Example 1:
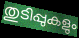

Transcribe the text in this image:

തുടിപ്പുകളും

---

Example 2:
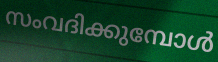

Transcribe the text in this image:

സംവദിക്കുമ്പോൾ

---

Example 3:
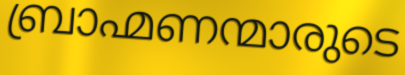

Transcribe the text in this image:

ബ്രാഹ്മണന്മാരുടെ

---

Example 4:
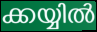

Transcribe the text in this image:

ക്കയ്യിൽ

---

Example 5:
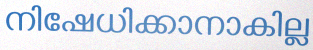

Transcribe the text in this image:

നിഷേധിക്കാനാകില്ല